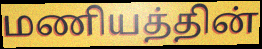
மணியத்தின்